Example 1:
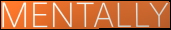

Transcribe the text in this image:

MENTALLY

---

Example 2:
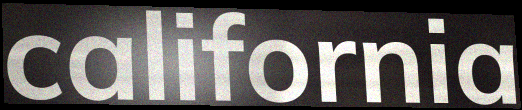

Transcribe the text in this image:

california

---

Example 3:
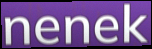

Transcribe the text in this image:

nenek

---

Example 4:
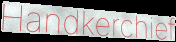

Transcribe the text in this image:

Handkerchief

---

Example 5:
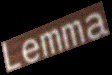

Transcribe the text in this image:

Lemma